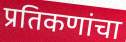
प्रतिकणांचा